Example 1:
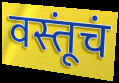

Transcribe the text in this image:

वस्तूंचं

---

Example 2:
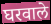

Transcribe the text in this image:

घरवाले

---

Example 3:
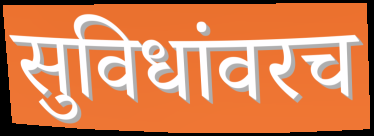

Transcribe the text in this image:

सुविधांवरच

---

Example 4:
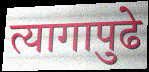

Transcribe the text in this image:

त्यागापुढे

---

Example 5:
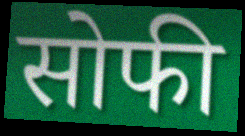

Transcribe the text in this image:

सोफी